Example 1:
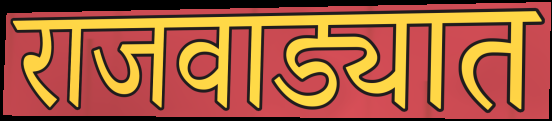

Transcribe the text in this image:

राजवाड्यात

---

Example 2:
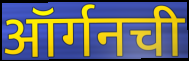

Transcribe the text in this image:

ऑर्गनची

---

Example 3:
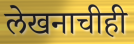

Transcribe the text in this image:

लेखनाचीही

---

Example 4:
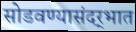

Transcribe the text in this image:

सोडवण्यासंदर्भात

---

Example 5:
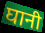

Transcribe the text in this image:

घानी